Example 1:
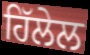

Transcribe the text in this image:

ਹਿੱਲੇਲ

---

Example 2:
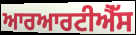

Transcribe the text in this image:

ਆਰਆਰਟੀਐੱਸ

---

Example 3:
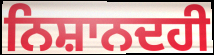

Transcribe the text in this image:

ਨਿਸ਼ਾਨਦਹੀ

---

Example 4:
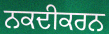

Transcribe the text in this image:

ਨਕਦੀਕਰਨ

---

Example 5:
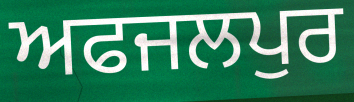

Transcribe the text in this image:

ਅਫਜਲਪੁਰ